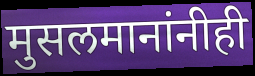
मुसलमानांनीही